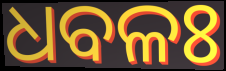
ଧବଳଃ